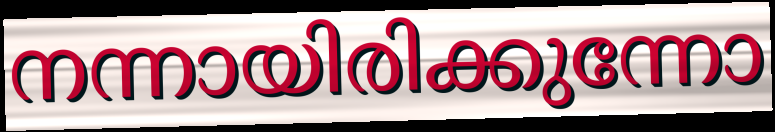
നന്നായിരിക്കുന്നോ